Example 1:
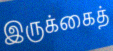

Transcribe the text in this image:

இருக்கைத்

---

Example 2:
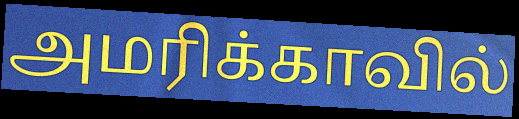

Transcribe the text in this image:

அமரிக்காவில்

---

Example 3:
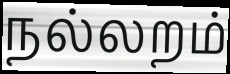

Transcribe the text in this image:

நல்லறம்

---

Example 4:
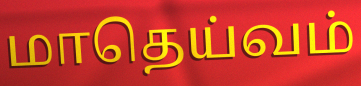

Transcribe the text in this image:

மாதெய்வம்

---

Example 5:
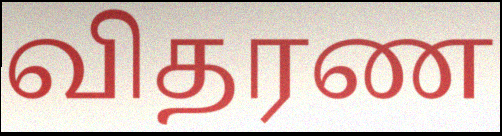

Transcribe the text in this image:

விதரண